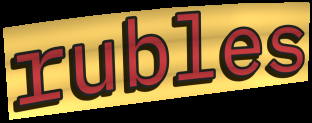
rubles